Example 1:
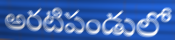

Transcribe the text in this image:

అరటిపండులో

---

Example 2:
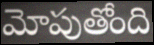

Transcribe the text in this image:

మోపుతోంది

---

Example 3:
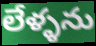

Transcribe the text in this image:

లేళ్ళను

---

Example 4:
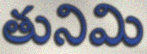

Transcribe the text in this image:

తునిమి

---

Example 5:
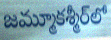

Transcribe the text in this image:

జమ్మూకశ్మీర్‌లో